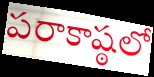
పరాకాష్ఠలో